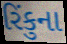
રિંકુના